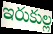
ఇరుకుల్ల